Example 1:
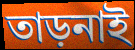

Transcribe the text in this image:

তাড়নাই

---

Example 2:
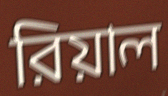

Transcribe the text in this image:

রিয়াল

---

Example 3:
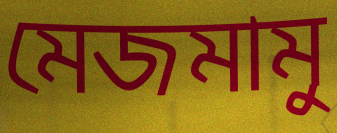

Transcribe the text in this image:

মেজমামু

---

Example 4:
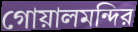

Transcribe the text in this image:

গোয়ালমন্দির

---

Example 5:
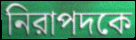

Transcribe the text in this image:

নিরাপদকে